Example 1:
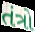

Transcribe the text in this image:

તંત્રો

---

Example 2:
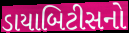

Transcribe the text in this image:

ડાયાબિટીસનો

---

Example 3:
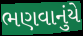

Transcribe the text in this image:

ભણવાનુંયે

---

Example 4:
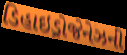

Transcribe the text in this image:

ડિહાઇડ્રોજેનેઝની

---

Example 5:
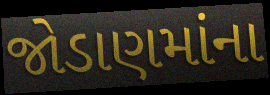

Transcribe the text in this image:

જોડાણમાંના